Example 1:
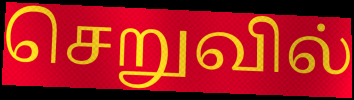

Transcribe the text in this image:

செறுவில்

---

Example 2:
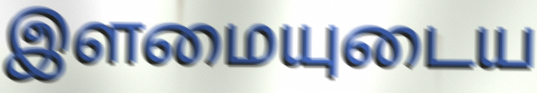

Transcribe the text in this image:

இளமையுடைய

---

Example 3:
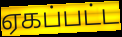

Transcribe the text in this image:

ஏகப்பட்ட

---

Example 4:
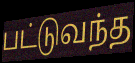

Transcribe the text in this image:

பட்டுவந்த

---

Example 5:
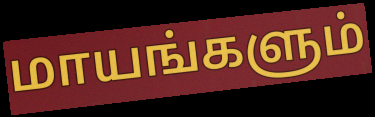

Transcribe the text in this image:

மாயங்களும்